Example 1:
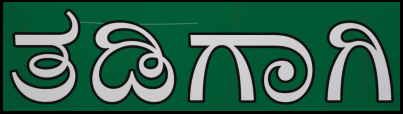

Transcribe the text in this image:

ತಡಿಗಾಗಿ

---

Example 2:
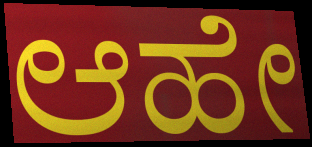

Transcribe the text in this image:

ಆಹೇ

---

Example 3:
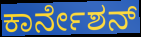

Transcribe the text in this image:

ಕಾರ್ನೇಶನ್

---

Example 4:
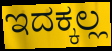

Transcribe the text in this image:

ಇದಕ್ಕಲ್ಲ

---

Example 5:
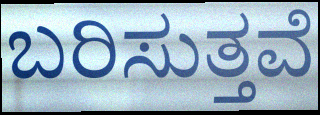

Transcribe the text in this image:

ಬರಿಸುತ್ತವೆ